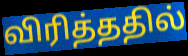
விரித்ததில்